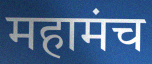
महामंच